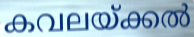
കവലയ്ക്കൽ